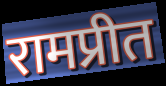
रामप्रीत